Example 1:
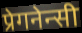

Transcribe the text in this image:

प्रेगनेन्सी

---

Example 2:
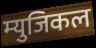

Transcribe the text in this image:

म्युजिकल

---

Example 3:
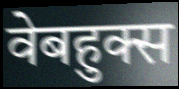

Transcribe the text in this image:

वेबहुक्स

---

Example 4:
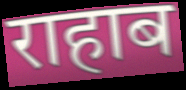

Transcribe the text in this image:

राहाब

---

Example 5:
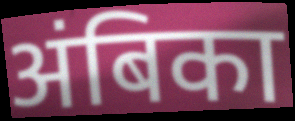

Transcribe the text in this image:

अंबिका